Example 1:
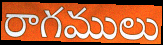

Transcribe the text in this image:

రాగములు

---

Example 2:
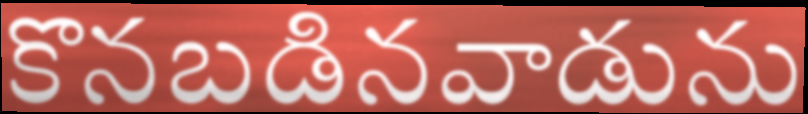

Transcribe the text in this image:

కొనబడినవాడును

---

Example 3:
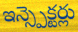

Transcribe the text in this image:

ఇన్స్పెక్టర్లు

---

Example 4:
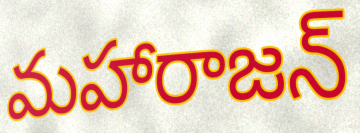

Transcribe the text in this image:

మహారాజన్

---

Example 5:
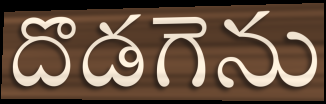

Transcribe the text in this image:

దొడగెను